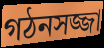
গঠনসজ্জা